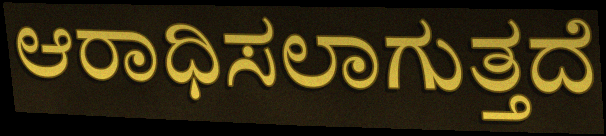
ಆರಾಧಿಸಲಾಗುತ್ತದೆ